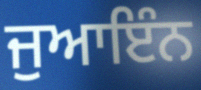
ਜੁਆਇੰਨ